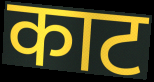
काट